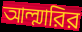
আল্মারির